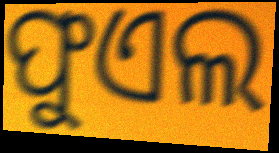
ଫୁଏଲ